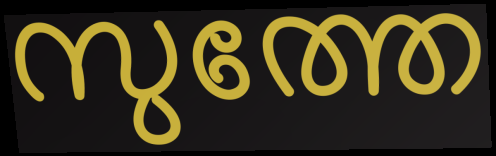
സുത്തേ